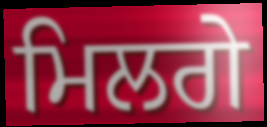
ਮਿਲਗੇ